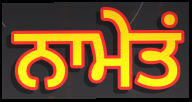
ਨਾਮੇਤਂ